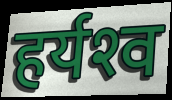
हर्यश्व